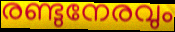
രണ്ടുനേരവും